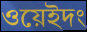
ওয়েইদং